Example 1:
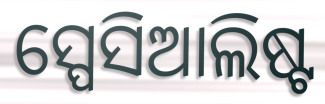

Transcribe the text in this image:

ସ୍ପେସିଆଲିଷ୍ଟ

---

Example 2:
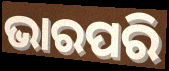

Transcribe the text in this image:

ଭାରପରି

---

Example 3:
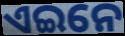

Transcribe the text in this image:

ଏଇନେ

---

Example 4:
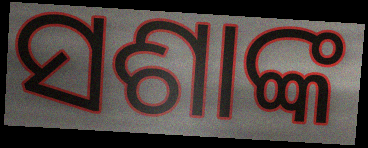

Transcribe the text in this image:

ସଶାଙ୍କ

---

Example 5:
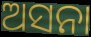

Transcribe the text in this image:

ଅସନା